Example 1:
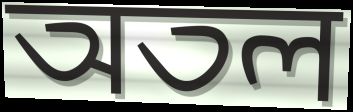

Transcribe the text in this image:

অতল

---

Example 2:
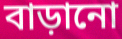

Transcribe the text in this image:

বাড়ানো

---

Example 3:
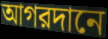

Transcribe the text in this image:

আগরদানে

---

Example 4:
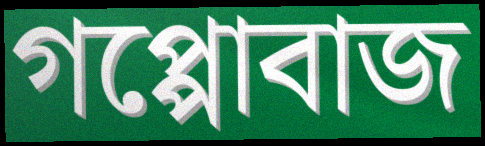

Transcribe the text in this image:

গপ্পোবাজ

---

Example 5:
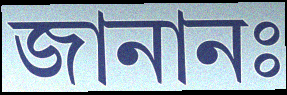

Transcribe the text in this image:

জানানঃ